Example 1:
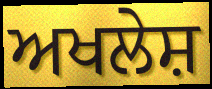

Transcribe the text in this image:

ਅਖਲੇਸ਼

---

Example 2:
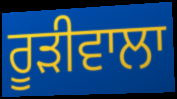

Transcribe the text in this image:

ਰੂਡ਼ੀਵਾਲਾ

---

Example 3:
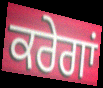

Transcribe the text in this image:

ਕਰੇਗਾਂ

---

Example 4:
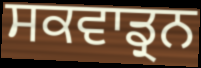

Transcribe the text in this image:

ਸਕਵਾਡ੍ਰਨ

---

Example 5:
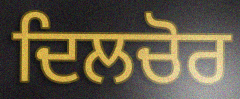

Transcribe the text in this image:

ਦਿਲਚੋਰ